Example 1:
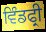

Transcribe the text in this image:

ਵਿੰਡਫ੍ਰੀ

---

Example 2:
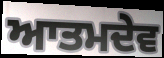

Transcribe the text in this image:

ਆਤਮਦੇਵ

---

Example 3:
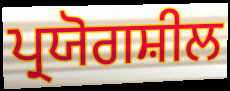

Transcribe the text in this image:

ਪ੍ਰਯੋਗਸ਼ੀਲ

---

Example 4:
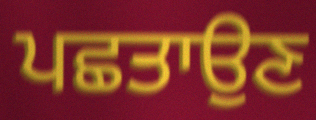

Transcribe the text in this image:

ਪਛਤਾਉਣ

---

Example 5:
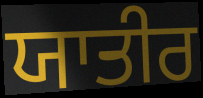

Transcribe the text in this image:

ਯਾਤੀਰ